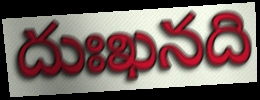
దుఃఖనది